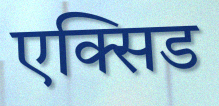
एक्सिड